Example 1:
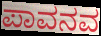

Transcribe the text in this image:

ಪಾವನವ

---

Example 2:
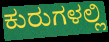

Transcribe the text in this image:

ಕುರುಗಳಲ್ಲಿ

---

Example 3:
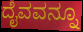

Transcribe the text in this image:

ದೈವವನ್ನೂ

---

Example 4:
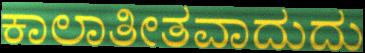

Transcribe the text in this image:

ಕಾಲಾತೀತವಾದುದು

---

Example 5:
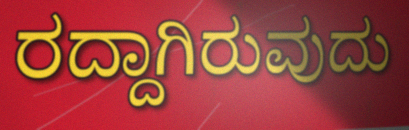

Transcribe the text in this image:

ರದ್ದಾಗಿರುವುದು